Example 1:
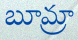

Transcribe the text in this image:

బూమ్రా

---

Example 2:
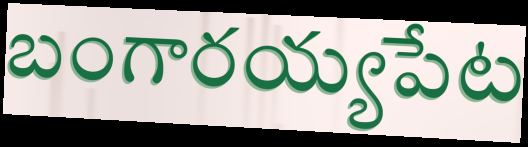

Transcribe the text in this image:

బంగారయ్యపేట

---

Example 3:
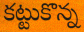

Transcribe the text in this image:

కట్టుకొన్న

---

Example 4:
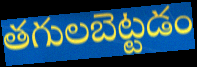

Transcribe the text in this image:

తగులబెట్టడం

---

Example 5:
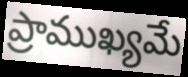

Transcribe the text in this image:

ప్రాముఖ్యమే